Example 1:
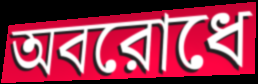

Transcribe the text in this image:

অবরোধে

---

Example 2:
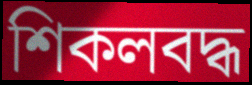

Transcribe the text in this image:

শিকলবদ্ধ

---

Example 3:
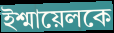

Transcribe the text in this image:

ইশ্মায়েলকে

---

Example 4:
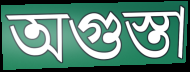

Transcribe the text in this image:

অগুস্তা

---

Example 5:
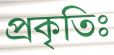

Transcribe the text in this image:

প্রকৃতিঃ